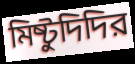
মিষ্টুদিদির